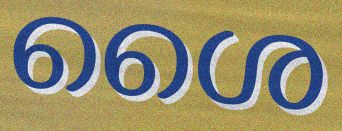
ശൈ